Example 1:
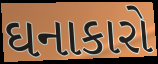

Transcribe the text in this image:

ઘનાકારો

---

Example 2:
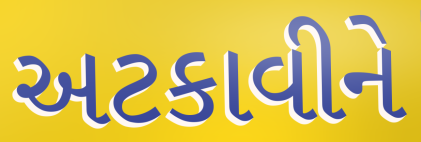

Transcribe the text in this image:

અટકાવીને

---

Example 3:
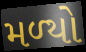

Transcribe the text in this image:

મળ્‍યો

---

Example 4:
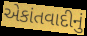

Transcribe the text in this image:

એકાંતવાદીનું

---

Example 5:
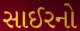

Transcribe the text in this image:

સાઈરનો